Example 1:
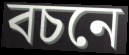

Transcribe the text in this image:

বচনে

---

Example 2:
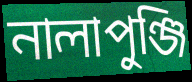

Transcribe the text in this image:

নালাপুঞ্জি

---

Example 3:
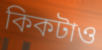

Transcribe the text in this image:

কিকটাও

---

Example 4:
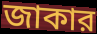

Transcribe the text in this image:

জাকার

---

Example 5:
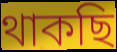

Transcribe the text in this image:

থাকছি